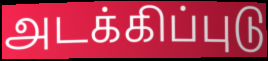
அடக்கிப்புடு